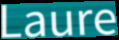
Laure